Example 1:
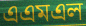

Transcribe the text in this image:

এএমএল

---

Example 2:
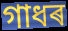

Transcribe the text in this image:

গাধৰ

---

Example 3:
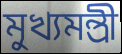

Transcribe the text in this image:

মুখ্যমন্ত্ৰী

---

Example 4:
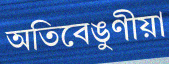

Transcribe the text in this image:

অতিবেঙুণীয়া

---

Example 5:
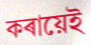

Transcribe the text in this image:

কৰায়েই